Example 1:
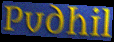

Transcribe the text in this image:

Pudhil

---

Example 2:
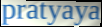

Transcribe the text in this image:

pratyaya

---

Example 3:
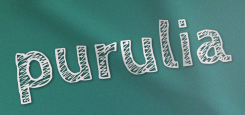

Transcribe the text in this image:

purulia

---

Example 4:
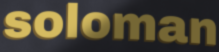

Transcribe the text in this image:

soloman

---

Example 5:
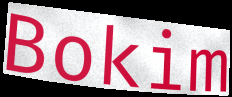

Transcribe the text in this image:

Bokim